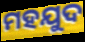
ମହଯୁଦ